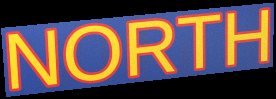
NORTH